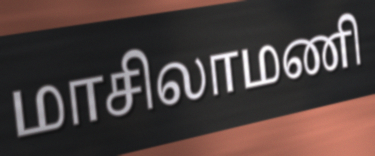
மாசிலாமணி